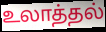
உலாத்தல்